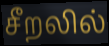
சீறலில்